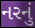
નરનું